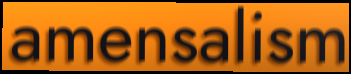
amensalism